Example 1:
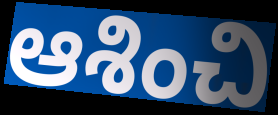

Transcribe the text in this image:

ఆశించి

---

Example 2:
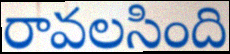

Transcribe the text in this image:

రావలసింది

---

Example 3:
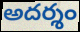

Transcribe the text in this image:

అదర్శం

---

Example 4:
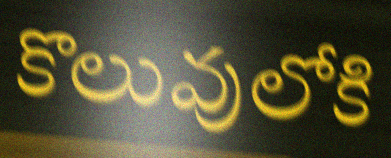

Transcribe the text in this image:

కొలువులోకి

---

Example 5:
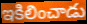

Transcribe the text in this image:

ఇకిలించాడు